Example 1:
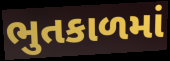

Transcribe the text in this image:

ભુતકાળમાં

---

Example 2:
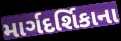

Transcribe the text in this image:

માર્ગદર્શિકાના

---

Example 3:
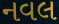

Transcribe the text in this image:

નવલ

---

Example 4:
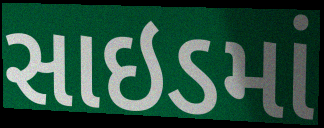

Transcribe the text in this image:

સાઇડમાં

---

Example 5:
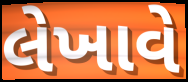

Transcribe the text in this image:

લેખાવે